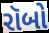
રૉબો